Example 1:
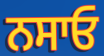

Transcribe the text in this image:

ਨਸਾਓ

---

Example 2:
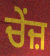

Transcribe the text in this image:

ਚੇਂਜ਼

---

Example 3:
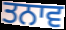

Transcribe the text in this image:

ਤਨਾਵ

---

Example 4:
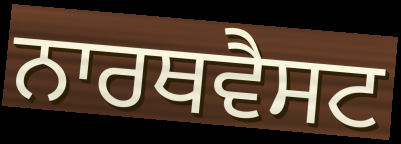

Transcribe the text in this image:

ਨਾਰਥਵੈਸਟ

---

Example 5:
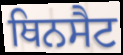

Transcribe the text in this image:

ਥਿਨਸੈਟ